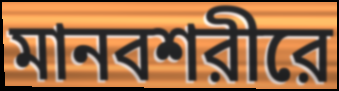
মানবশরীরে